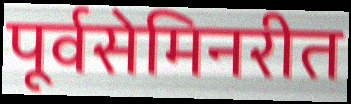
पूर्वसेमिनरीत